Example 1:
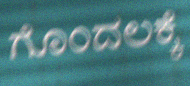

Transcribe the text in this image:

ಗೊಂದಲಕ್ಕೆ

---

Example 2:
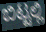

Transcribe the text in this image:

ಬಿಟ್ಟಲ್ಲಿ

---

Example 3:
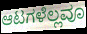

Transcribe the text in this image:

ಆಟಗಳೆಲ್ಲವೂ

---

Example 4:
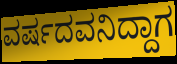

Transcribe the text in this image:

ವರ್ಷದವನಿದ್ದಾಗ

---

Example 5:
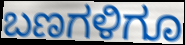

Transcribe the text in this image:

ಬಣಗಳಿಗೂ